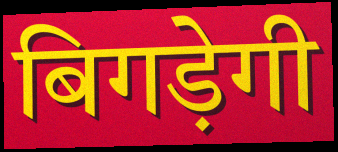
बिगड़ेगी